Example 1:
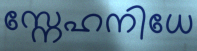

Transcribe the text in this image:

സ്നേഹനിധേ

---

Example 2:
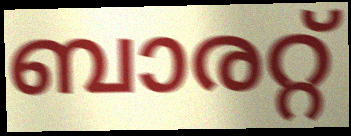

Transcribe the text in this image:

ബാരറ്റ്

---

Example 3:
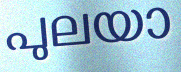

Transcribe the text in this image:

പുലയാ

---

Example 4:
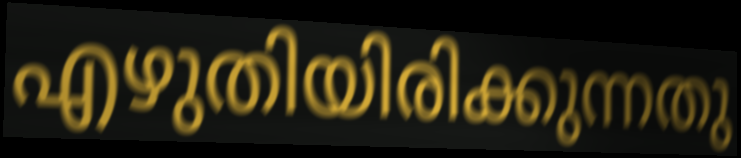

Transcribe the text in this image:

എഴുതിയിരിക്കുന്നതു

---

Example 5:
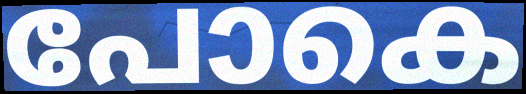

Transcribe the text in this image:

പോകെ